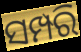
ସମ୍ପରି